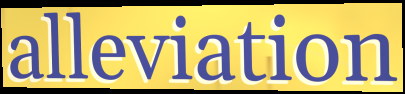
alleviation